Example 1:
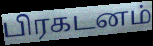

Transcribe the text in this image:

பிரகடனம்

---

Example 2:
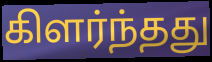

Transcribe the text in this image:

கிளர்ந்தது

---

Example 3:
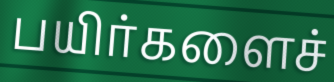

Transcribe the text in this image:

பயிர்களைச்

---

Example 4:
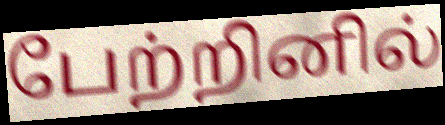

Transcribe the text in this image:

பேற்றினில்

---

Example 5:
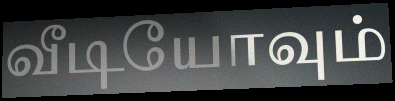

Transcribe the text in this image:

வீடியோவும்